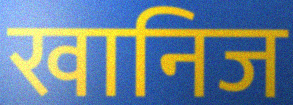
खानिज